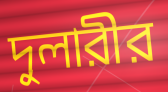
দুলারীর